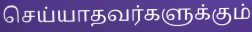
செய்யாதவர்களுக்கும்